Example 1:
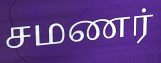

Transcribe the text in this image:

சமணர்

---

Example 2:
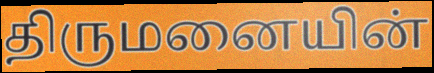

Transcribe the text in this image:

திருமனையின்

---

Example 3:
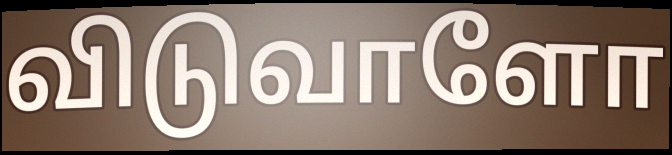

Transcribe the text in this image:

விடுவாளோ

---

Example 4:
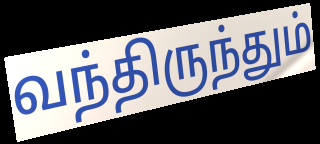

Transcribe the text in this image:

வந்திருந்தும்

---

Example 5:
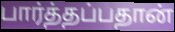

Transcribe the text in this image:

பார்த்தப்பதான்